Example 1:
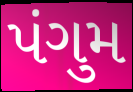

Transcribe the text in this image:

પંગુમ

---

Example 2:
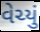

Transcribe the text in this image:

વેચ્યું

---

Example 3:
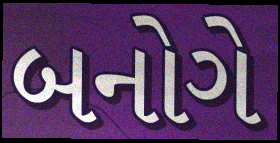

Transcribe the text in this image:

બનોગે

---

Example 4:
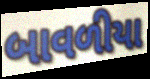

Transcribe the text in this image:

બાવળીયા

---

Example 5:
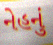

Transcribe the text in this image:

નેહનું